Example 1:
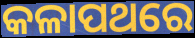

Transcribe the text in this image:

କଳାପଥରେ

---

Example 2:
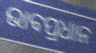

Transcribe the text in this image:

ଭାବପ୍ରଧାନ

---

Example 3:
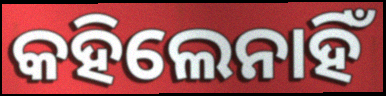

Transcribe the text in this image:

କହିଲେନାହିଁ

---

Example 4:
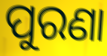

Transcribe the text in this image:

ପୁରଣା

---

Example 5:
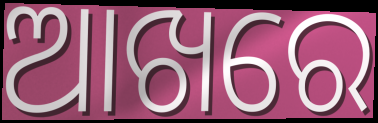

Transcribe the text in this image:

ଆଖରେ